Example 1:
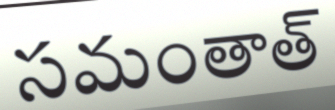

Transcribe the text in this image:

సమంతాత్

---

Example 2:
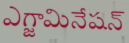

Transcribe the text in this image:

ఎగ్జామినేషన్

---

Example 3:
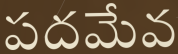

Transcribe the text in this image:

పదమేవ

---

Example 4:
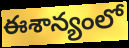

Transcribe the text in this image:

ఈశాన్యంలో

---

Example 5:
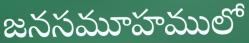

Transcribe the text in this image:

జనసమూహములో